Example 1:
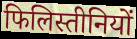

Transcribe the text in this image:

फिलिस्तीनियों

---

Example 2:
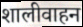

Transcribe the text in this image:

शालीवाहन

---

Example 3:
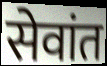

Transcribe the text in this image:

सेवांत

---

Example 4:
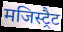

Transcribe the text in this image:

मजिस्ट्रैट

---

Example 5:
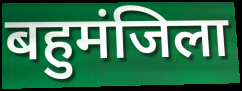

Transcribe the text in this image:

बहुमंजिला